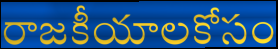
రాజకీయాలకోసం